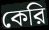
কেরি